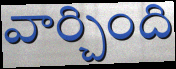
వార్చింది